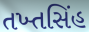
તખ્તસિંહ